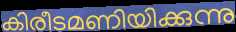
കിരീടമണിയിക്കുന്നു